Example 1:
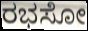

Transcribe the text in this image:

ರಭಸೋ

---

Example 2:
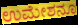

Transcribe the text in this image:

ಉಮೇಶನೂ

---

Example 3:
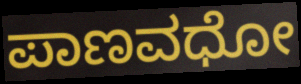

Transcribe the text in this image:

ಪಾಣವಧೋ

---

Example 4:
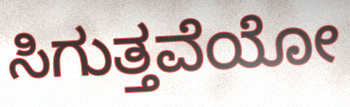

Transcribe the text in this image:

ಸಿಗುತ್ತವೆಯೋ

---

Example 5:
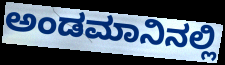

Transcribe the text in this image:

ಅಂಡಮಾನಿನಲ್ಲಿ